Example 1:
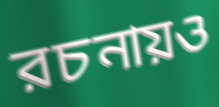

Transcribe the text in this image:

রচনায়ও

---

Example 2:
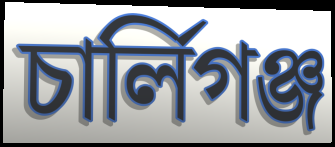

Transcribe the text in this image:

চার্লিগঞ্জ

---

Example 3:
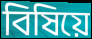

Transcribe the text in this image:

বিষিয়ে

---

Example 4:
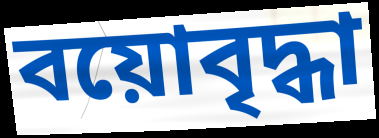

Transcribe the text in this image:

বয়োবৃদ্ধা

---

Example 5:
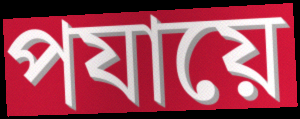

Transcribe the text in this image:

পযায়ে